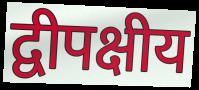
द्वीपक्षीय